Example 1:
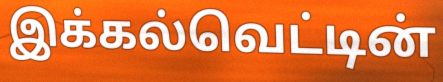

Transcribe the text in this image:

இக்கல்வெட்டின்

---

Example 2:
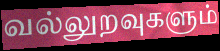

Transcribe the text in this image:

வல்லுறவுகளும்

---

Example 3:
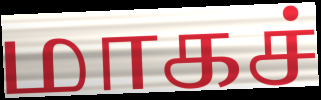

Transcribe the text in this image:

மாகச்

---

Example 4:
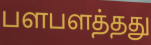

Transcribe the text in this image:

பளபளத்தது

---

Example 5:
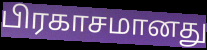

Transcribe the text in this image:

பிரகாசமானது